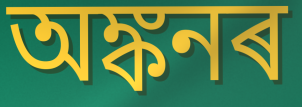
অঙ্কনৰ